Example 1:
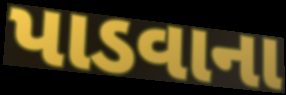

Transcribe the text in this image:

પાડવાના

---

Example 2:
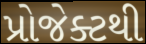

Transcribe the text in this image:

પ્રોજેક્ટથી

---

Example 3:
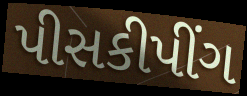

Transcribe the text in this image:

પીસકીપીંગ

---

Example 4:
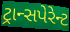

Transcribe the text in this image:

ટ્રાન્સપેરેન્ટ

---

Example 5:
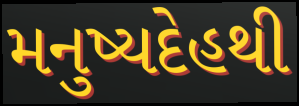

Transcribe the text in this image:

મનુષ્યદેહથી